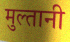
मुल्‍तानी